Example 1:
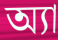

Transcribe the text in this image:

অ্যা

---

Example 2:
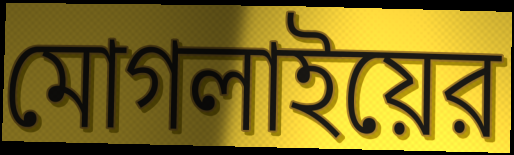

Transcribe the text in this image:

মোগলাইয়ের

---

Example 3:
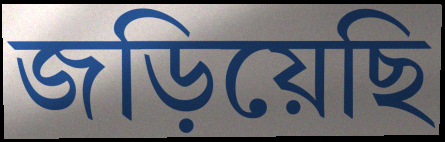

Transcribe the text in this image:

জড়িয়েছি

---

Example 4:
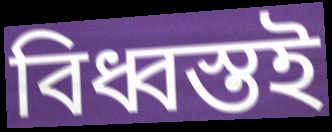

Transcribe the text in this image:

বিধ্বস্তই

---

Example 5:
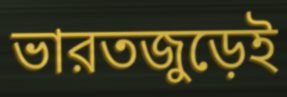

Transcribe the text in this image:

ভারতজুড়েই